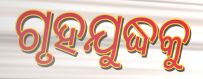
ଗୃହଯୁଦ୍ଧକୁ